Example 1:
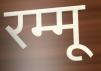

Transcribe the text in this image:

रम्मू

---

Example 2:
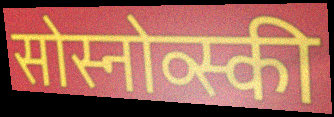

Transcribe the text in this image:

सोस्नोव्स्की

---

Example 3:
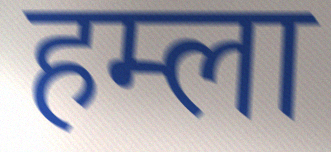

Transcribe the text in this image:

हम्ला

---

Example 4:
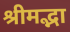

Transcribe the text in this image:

श्रीमद्भा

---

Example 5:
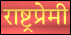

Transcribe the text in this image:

राष्ट्रप्रेमी